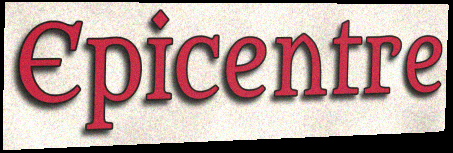
Epicentre